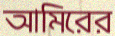
আমিরের